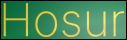
Hosur